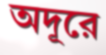
অদূরে